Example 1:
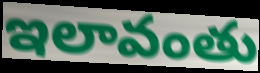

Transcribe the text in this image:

ఇలావంతు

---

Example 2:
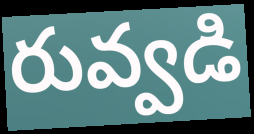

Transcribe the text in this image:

రువ్వడి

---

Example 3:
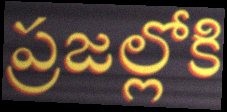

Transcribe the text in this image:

ప్రజల్లోకి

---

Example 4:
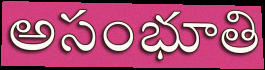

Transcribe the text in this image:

అసంభూతి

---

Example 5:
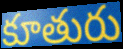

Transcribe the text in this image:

కూతురు